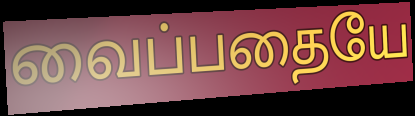
வைப்பதையே